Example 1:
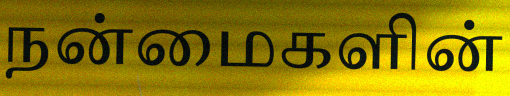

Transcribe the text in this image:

நன்மைகளின்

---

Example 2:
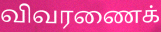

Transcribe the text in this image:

விவரணைக்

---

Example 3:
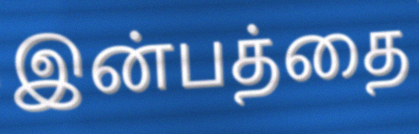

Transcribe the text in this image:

இன்பத்தை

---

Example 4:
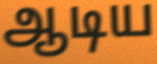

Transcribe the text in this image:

ஆடிய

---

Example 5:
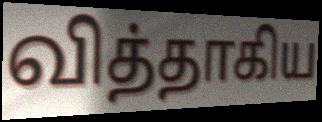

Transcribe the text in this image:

வித்தாகிய